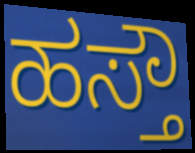
ಹಸ್ತೌ